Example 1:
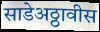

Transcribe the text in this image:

साडेअठ्ठावीस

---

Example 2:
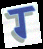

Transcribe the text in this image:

ग्‍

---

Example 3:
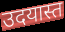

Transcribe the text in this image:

उदयास्त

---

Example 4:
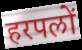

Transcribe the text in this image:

हरपलों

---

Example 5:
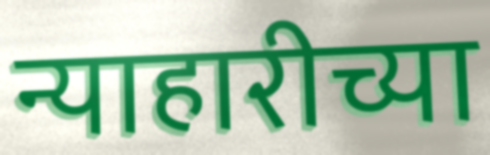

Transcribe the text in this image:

न्याहारीच्या